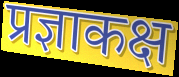
प्रज्ञाकक्ष